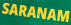
SARANAM